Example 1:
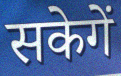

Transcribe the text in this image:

सकेगें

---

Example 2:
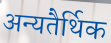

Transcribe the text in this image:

अन्यतैर्थिक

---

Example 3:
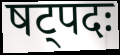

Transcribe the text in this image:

षट्पदः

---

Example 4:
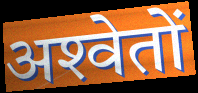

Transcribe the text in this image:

अश्‍वेतों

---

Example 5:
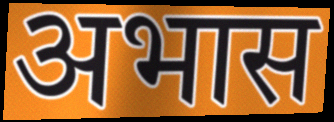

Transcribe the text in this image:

अभास